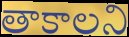
తాకాలని